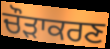
ਚੌੜਾਕਰਣ